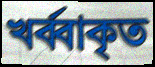
খর্ব্বাকৃত